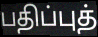
பதிப்புத்